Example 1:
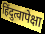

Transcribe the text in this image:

हिंदुत्वापेक्षा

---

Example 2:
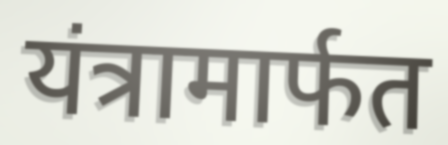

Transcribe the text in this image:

यंत्रामार्फत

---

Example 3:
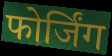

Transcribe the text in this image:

फोर्जिंग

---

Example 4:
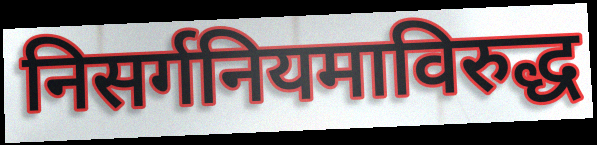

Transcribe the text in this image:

निसर्गनियमाविरुद्ध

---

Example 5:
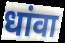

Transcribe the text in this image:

धांवा